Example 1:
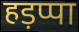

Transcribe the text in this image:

हड़प्पा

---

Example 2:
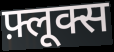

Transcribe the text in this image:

फ़्लूक्स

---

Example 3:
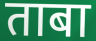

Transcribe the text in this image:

ताबा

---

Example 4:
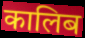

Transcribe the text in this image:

कालिब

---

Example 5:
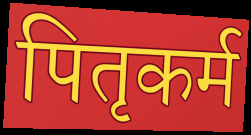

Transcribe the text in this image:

पितृकर्म